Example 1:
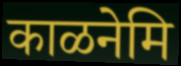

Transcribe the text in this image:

काळनेमि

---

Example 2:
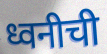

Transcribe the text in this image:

ध्वनीची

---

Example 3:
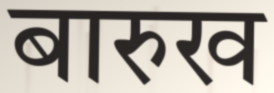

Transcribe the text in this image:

बारुख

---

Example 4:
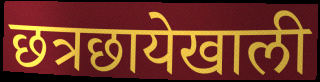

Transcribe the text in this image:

छत्रछायेखाली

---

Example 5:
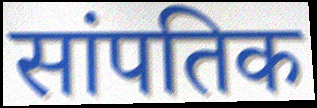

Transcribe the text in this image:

सांपतिक